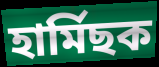
হাৰ্মিছক